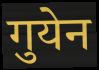
गुयेन